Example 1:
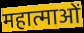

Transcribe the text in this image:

महात्माओं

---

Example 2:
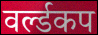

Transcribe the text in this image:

वर्ल्डकप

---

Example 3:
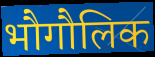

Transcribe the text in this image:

भौगौलिक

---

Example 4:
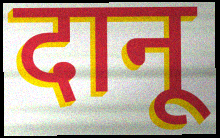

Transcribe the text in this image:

दानू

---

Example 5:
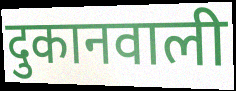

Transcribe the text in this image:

दुकानवाली